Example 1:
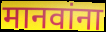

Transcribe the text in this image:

मानवांना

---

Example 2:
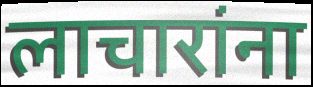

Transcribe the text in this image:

लाचारांना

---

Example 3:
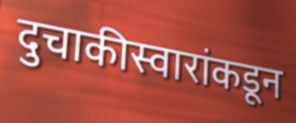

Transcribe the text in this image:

दुचाकीस्वारांकडून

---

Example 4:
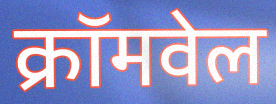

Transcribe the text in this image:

क्रॉमवेल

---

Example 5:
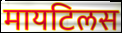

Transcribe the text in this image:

मायटिलस